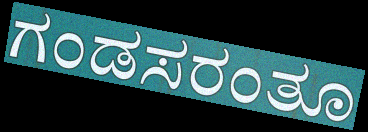
ಗಂಡಸರಂತೂ